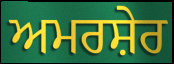
ਅਮਰਸ਼ੇਰ